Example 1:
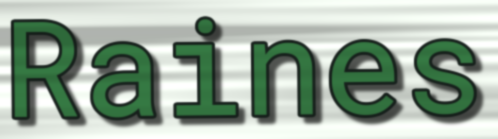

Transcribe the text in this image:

Raines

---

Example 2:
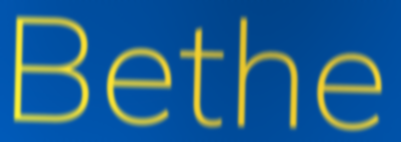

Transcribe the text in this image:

Bethe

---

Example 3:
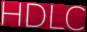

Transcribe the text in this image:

HDLC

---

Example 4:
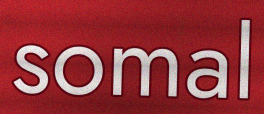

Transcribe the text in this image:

somal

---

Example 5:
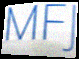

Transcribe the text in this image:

MFJ